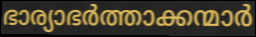
ഭാര്യാഭർത്താക്കന്മാർ